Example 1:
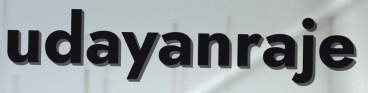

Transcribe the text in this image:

udayanraje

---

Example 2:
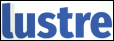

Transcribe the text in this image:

lustre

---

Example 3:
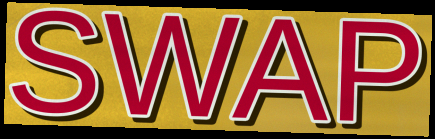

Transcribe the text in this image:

SWAP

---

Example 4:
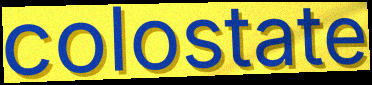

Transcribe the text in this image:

colostate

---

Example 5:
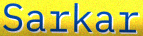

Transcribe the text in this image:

Sarkar